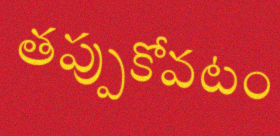
తప్పుకోవటం